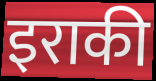
इराकी